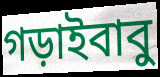
গড়াইবাবু